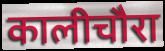
कालीचौरा